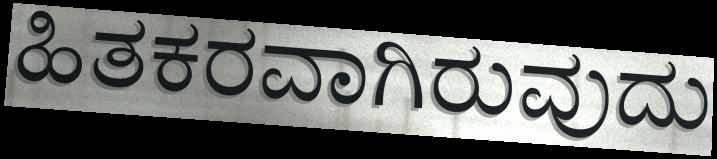
ಹಿತಕರವಾಗಿರುವುದು